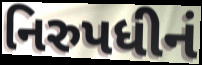
નિરુપધીનં